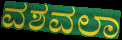
ವಶವಲಾ